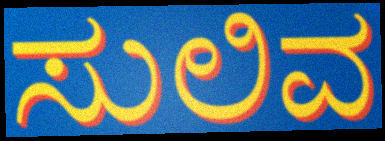
ಸುಲಿವ